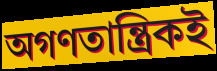
অগণতান্ত্রিকই